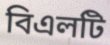
বিএলটি